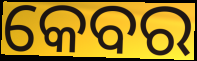
କେବର